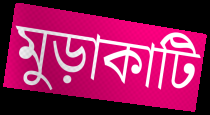
মুড়াকাটি